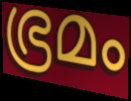
ഭ്രമം